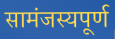
सामंजस्यपूर्ण